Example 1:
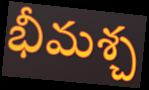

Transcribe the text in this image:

భీమశ్చ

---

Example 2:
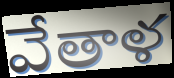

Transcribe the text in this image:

వేతాళ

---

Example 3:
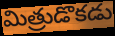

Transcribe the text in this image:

మిత్రుడొకడు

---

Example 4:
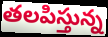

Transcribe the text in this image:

తలపిస్తున్న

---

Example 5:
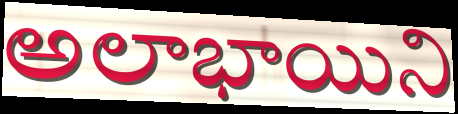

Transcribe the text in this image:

అలాభాయిని